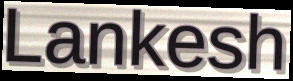
Lankesh